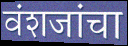
वंशजांचा